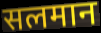
सलमान